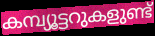
കമ്പ്യൂട്ടറുകളുണ്ട്